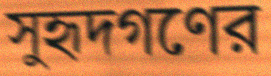
সুহৃদগণের